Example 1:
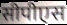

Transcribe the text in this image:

सीपीएस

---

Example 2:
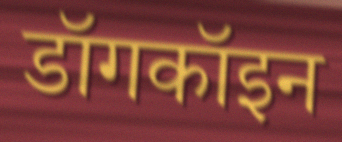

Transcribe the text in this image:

डॉगकॉइन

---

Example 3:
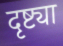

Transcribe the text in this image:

दृष्ट्या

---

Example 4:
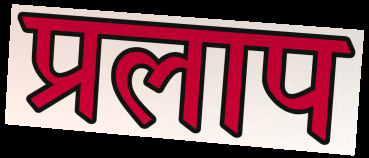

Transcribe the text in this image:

प्रलाप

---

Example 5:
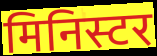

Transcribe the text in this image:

मिनिस्टर